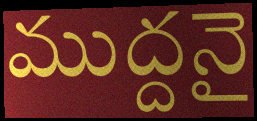
ముద్దనై